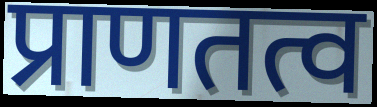
प्राणतत्व